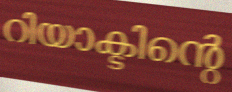
റിയാക്ടിന്റെ